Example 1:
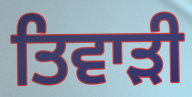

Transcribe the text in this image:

ਤਿਵਾੜੀ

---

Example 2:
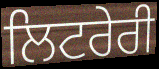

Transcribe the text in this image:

ਲਿਟਰੇਰੀ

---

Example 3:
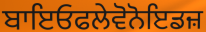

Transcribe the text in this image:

ਬਾਇਓਫਲੇਵੋਨੋਇਡਜ਼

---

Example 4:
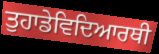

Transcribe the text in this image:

ਤੁਹਾਡੇਵਿਦਿਆਰਥੀ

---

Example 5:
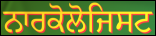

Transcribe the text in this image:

ਨਾਰਕੋਲੋਜਿਸਟ